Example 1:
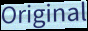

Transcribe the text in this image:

Original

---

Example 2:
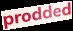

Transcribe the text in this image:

prodded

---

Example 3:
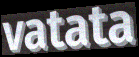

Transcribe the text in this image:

vatata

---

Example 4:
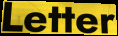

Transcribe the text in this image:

Letter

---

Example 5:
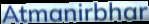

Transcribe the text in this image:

Atmanirbhar